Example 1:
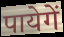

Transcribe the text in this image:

पायेगें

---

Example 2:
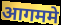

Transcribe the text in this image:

आगममे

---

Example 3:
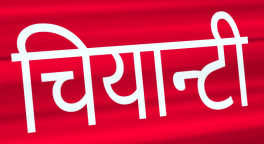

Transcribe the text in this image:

चियान्टी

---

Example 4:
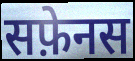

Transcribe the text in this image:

सफ़ेनस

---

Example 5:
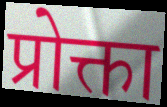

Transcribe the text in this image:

प्रोक्ता